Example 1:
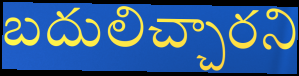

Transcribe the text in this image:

బదులిచ్చారని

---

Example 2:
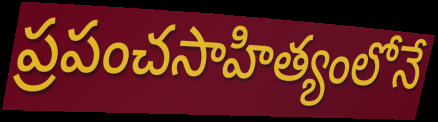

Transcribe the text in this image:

ప్రపంచసాహిత్యంలోనే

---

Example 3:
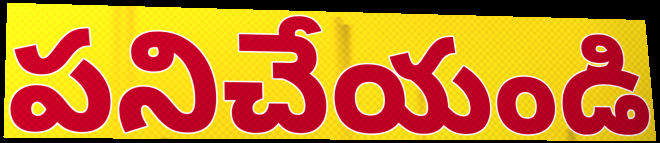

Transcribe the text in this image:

పనిచేయండి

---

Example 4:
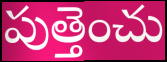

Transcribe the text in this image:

పుత్తెంచు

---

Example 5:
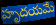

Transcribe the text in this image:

హృదయమే